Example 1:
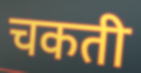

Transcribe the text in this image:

चकती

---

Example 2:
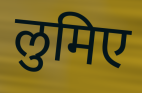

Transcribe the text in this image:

लुमिए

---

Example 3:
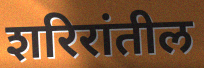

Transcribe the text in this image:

शरिरांतील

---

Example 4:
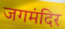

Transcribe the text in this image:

जगमंदिर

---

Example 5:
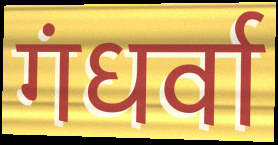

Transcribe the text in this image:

गंधर्वा